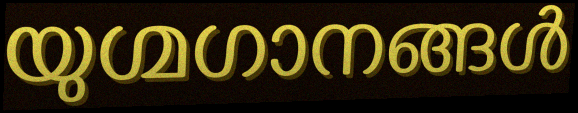
യുഗ്മഗാനങ്ങൾ